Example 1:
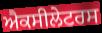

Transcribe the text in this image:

ਐਕਸੀਲੇਟਰਸ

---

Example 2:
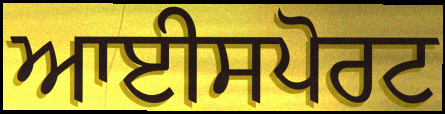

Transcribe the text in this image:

ਆਈਸਪੋਰਟ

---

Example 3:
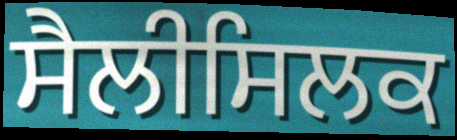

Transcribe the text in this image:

ਸੈਲੀਸਿਲਕ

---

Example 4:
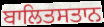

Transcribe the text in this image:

ਬਾਲਿਤਸਤਾਨ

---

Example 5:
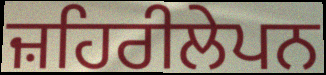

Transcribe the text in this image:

ਜ਼ਹਿਰੀਲੇਪਨ